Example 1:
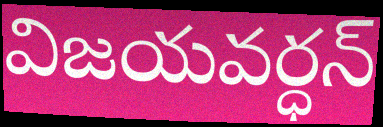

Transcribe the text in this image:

విజయవర్ధన్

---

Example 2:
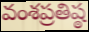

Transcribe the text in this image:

వంశప్రతిష్ఠ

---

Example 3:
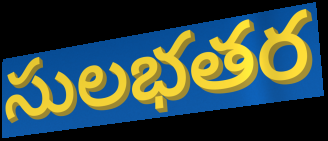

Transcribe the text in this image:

సులభతర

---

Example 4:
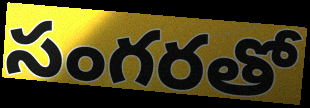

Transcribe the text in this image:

సంగరతో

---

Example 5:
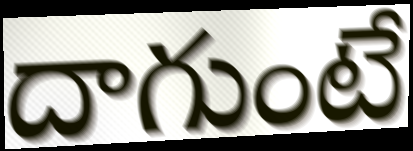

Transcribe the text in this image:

దాగుంటే